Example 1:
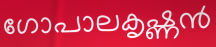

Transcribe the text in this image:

ഗോപാലകൃഷ്ണൻ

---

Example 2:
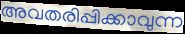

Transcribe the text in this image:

അവതരിപ്പിക്കാവുന്ന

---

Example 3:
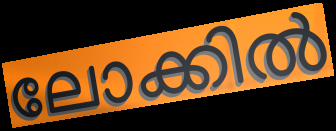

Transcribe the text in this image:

ലോക്കിൽ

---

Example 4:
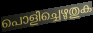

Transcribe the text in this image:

പൊളിച്ചെഴുതുക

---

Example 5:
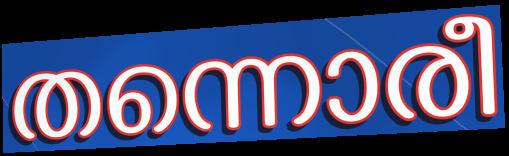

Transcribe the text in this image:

തന്നൊരീ